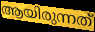
ആയിരുന്നത്